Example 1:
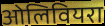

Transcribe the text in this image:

ओलिवियरा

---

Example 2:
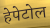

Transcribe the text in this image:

हेपेटोल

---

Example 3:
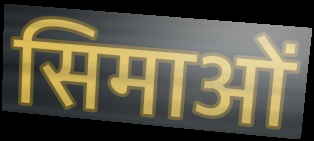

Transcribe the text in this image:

सिमाओं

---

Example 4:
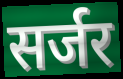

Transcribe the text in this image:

सर्जर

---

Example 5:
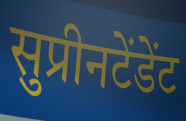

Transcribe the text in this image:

सुप्रीनटेंडेंट